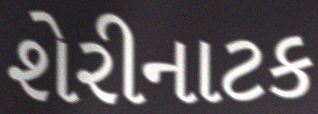
શેરીનાટક